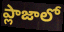
ప్లాజాలో